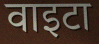
वाइटा